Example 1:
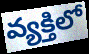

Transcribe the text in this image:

వ్యక్తిలో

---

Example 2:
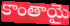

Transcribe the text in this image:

కాంతాయై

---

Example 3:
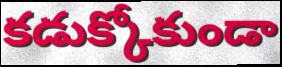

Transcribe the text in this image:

కడుక్కోకుండా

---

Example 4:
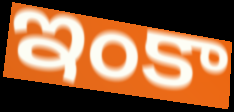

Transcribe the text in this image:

ఇంకా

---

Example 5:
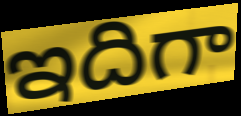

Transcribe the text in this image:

ఇదిగా